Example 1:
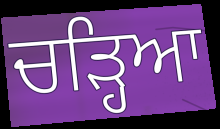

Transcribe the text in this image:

ਚੜ੍ਹਿਆ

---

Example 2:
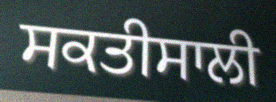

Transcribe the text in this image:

ਸਕਤੀਸਾਲੀ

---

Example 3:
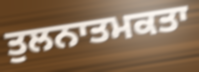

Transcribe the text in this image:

ਤੁਲਨਾਤਮਕਤਾ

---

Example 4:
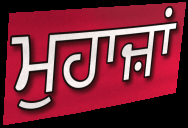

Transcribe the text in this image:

ਮੁਹਾਜ਼ਾਂ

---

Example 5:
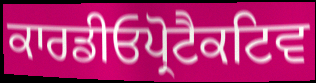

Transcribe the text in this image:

ਕਾਰਡੀਓਪ੍ਰੋਟੈਕਟਿਵ